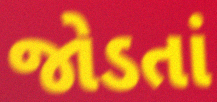
જોડતાં